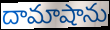
దామాషాను